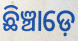
ଛିଞ୍ଚାଡ଼େ